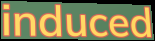
induced